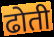
ढोती